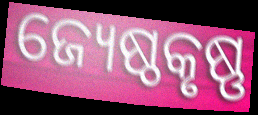
ଜ୍ୟେଷ୍ଠକୃଷ୍ଣ